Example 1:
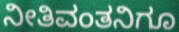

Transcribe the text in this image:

ನೀತಿವಂತನಿಗೂ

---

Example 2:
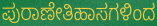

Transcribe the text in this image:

ಪುರಾಣೇತಿಹಾಸಗಳಿಂದ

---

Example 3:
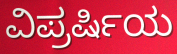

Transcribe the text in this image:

ವಿಪ್ರರ್ಷಿಯ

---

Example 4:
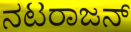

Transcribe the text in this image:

ನಟರಾಜನ್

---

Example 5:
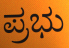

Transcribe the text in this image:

ಪ್ರಭು